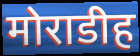
मोराडीह